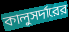
কালুসর্দারের